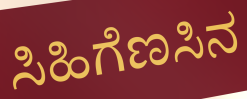
ಸಿಹಿಗೆಣಸಿನ